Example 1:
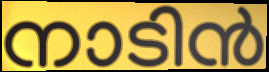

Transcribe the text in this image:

നാടിൻ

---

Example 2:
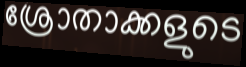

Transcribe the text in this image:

ശ്രോതാക്കളുടെ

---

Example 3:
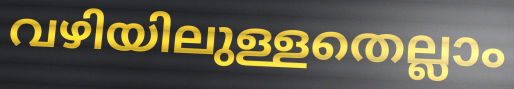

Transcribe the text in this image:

വഴിയിലുള്ളതെല്ലാം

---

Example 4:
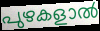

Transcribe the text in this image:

പുഴകളാൽ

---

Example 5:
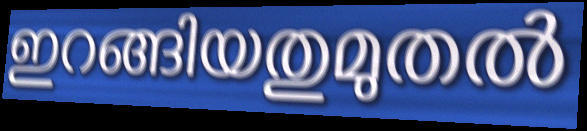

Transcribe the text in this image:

ഇറങ്ങിയതുമുതൽ